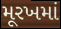
મૂરખમાં